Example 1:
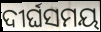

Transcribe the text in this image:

ଦୀର୍ଘସମୟ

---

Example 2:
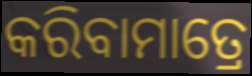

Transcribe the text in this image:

କରିବାମାତ୍ରେ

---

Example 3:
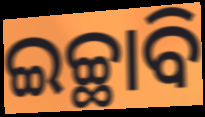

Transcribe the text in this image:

ଇଚ୍ଛାବି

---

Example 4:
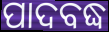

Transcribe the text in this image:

ପାଦବଦ୍ଧ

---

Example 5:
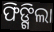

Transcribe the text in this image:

ଫିଙ୍ଗିଲା